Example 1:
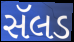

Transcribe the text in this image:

સૅલડ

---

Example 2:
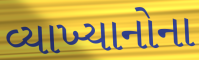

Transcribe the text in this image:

વ્યાખ્યાનોના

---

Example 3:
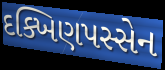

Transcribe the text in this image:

દક્ખિણપસ્સેન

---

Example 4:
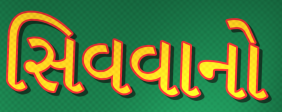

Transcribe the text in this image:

સિવવાનો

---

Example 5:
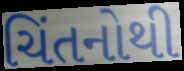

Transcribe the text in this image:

ચિંતનોથી